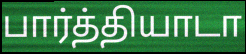
பார்த்தியாடா